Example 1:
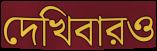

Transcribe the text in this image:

দেখিবারও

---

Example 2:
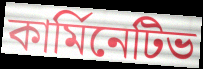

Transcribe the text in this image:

কার্মিনেটিভ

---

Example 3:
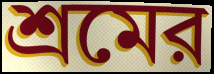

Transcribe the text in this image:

শ্রমের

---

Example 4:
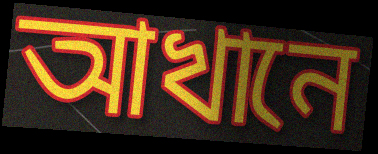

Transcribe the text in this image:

আখানে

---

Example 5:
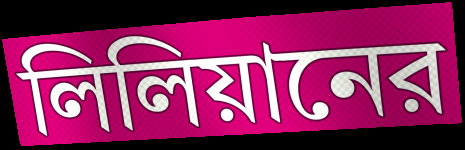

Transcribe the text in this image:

লিলিয়ানের